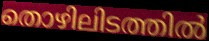
തൊഴിലിടത്തിൽ